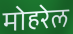
मोहरेल